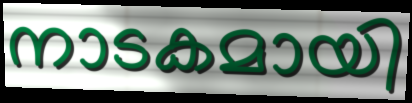
നാടകമായി